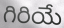
గిరియే